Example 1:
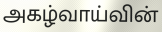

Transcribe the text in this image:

அகழ்வாய்வின்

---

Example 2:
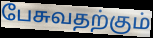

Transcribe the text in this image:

பேசுவதற்கும்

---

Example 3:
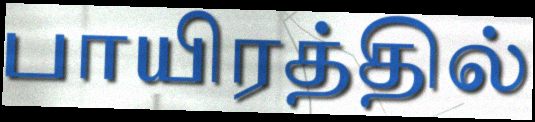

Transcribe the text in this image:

பாயிரத்தில்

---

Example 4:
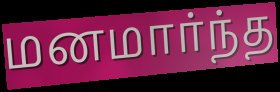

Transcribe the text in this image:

மனமார்ந்த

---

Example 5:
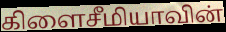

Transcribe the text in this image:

கிளைசீமியாவின்